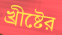
খ্রীষ্টের